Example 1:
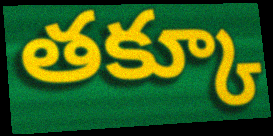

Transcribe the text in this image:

తక్కూ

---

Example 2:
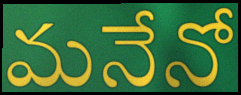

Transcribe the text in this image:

మనేనో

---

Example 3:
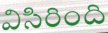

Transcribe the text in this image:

విసిరింది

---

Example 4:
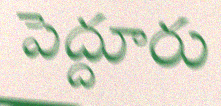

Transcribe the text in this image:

పెద్దూరు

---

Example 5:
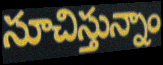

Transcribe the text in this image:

సూచిస్తున్నాం